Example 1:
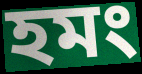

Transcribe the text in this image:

হমং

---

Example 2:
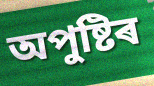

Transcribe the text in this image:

অপুষ্টিৰ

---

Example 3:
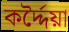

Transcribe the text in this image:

কৰ্দ্দৈয়া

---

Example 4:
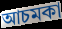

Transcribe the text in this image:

আচমকা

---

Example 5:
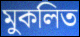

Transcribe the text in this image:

মুকলিত